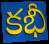
కభీ